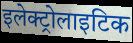
इलेक्ट्रोलाइटिक